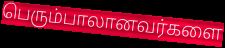
பெரும்பாலானவர்களை